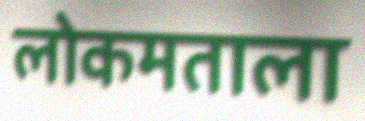
लोकमताला